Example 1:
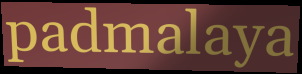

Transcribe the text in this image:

padmalaya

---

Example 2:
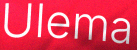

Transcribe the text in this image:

Ulema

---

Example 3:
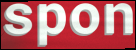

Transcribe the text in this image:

spon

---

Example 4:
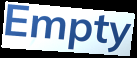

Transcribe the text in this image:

Empty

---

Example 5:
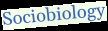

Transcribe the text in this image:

Sociobiology